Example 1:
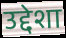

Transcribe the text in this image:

उद्देशा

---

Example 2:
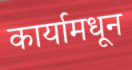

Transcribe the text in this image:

कार्यामधून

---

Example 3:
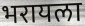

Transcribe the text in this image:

भरायला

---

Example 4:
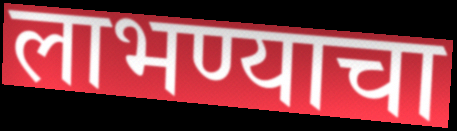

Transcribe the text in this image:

लाभण्याचा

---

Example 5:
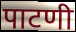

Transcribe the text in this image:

पाटणी